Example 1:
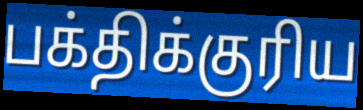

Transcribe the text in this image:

பக்திக்குரிய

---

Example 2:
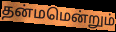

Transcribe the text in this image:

தன்மமென்றும்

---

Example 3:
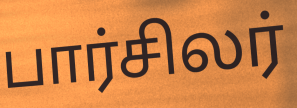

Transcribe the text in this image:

பார்சிலர்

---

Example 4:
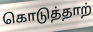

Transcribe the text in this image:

கொடுத்தாற்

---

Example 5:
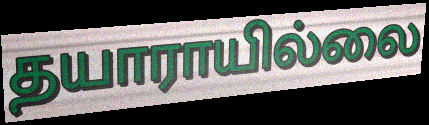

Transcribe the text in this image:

தயாராயில்லை